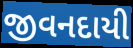
જીવનદાયી